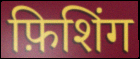
फ़िशिंग